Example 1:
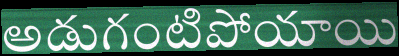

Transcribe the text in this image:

అడుగంటిపోయాయి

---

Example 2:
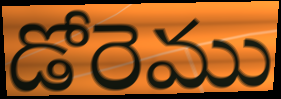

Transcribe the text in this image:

డోరెము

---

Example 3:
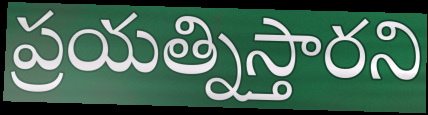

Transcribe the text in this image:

ప్రయత్నిస్తారని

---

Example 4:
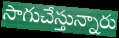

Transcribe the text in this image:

సాగుచేస్తున్నారు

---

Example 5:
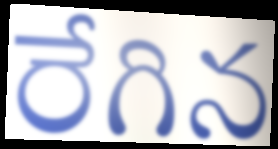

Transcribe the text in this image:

రేగిన